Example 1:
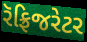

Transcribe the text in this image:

રૅફ્રિજરેટર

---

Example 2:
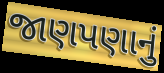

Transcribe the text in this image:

જાણપણાનું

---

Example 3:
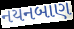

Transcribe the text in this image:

નયનબાણ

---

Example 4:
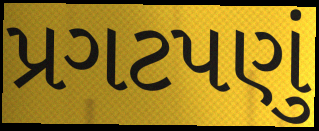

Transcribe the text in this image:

પ્રગટપણું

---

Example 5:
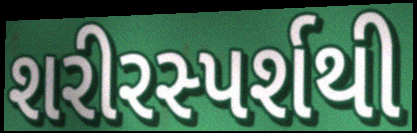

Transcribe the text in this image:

શરીરસ્પર્શથી